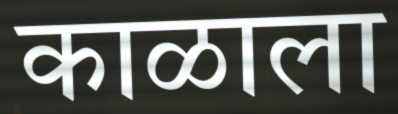
काळाला